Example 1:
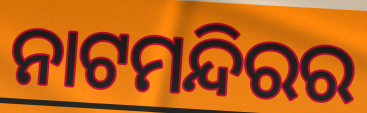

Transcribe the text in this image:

ନାଟମନ୍ଦିରର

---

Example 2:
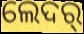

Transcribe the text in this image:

ଲେଦର୍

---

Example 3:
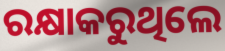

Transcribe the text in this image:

ରକ୍ଷାକରୁଥିଲେ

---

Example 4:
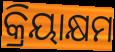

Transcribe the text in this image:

କ୍ରିୟାକ୍ଷମ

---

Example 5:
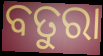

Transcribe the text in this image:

ବତୁରା